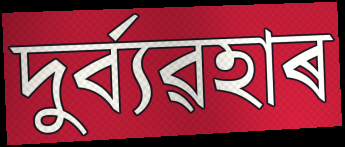
দুৰ্ব্যৱহাৰ